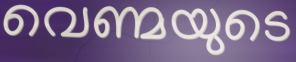
വെണ്മയുടെ